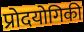
प्रोदयोगिकी